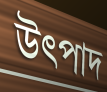
উৎপাদ